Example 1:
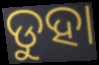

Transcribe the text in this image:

ଡୁହା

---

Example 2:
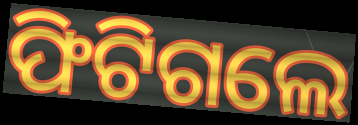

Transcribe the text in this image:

ଫିଟିଗଲେ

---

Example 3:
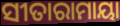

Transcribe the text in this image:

ସୀତାରାମାୟା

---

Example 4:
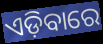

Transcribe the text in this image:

ଏଡ଼ିବାରେ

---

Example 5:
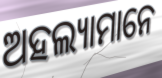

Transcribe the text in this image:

ଅହଲ୍ୟାମାନେ